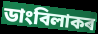
ডাংবিলাকৰ